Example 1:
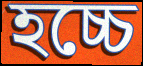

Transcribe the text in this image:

হচ্চে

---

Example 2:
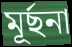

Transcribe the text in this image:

মূর্ছনা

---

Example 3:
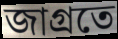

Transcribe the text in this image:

জাগ্রতে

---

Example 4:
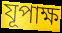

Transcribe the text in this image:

যূপাক্ষ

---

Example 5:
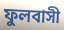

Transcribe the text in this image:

ফুলবাসী